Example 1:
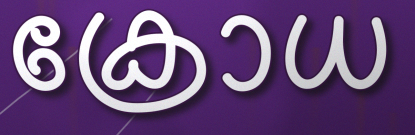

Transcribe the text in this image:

ക്രോധ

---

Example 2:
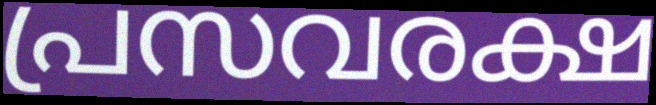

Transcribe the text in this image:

പ്രസവരക്ഷ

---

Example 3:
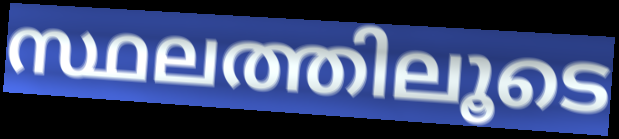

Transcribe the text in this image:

സ്ഥലത്തിലൂടെ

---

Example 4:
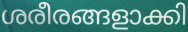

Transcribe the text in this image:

ശരീരങ്ങളാക്കി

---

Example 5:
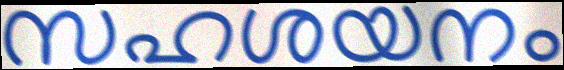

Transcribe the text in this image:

സഹശയനം